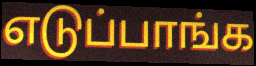
எடுப்பாங்க